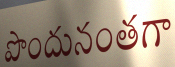
పొందునంతగా